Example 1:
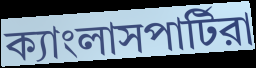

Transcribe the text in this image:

ক্যাংলাসপার্টিরা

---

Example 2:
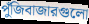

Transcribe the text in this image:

পুঁজিবাজারগুলো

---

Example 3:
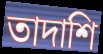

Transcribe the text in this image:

তাদাশি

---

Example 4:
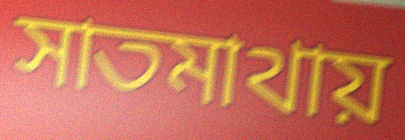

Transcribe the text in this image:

সাতমাথায়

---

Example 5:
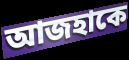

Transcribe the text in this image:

আজহাকে